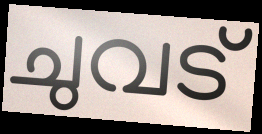
ചുവട്